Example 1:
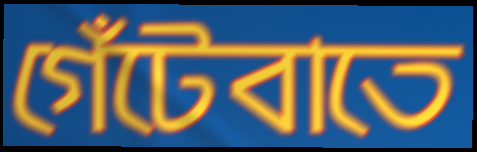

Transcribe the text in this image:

গেঁটেবাতে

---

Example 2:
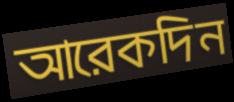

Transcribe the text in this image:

আরেকদিন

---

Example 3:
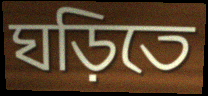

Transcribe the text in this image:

ঘড়িতে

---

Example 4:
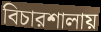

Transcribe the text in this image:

বিচারশালায়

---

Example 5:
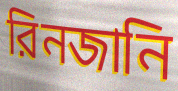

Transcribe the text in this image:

রিনজানি